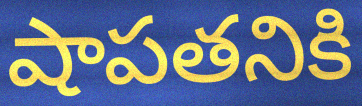
షాపతనికి